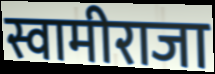
स्वामीराजा